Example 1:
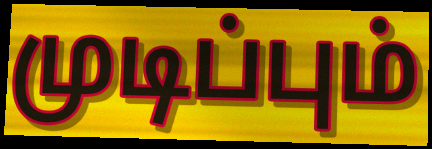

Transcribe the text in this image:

முடிப்பும்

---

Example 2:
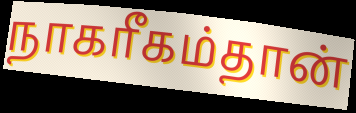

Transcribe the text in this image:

நாகரீகம்தான்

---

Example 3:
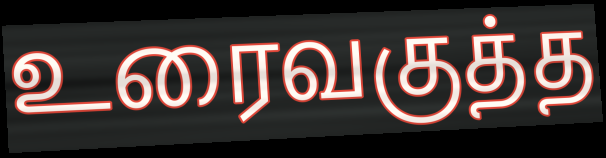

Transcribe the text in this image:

உரைவகுத்த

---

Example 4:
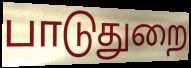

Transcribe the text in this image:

பாடுதுறை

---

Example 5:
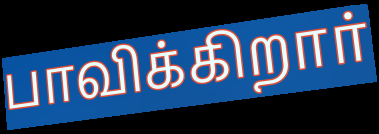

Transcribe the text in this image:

பாவிக்கிறார்